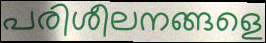
പരിശീലനങ്ങളെ